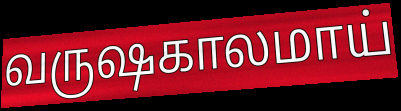
வருஷகாலமாய்